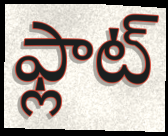
ఫ్లాట్